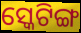
ସ୍କେଟିଙ୍ଗ